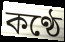
কণ্ঠে